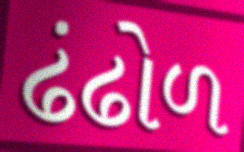
ઢંઢોળ